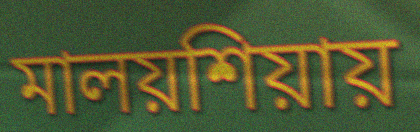
মালয়শিয়ায়